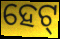
ହେଟ୍